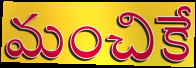
మంచికే